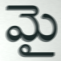
మై